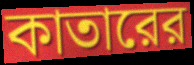
কাতারের